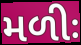
મળીઃ